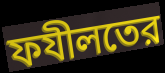
ফযীলতের